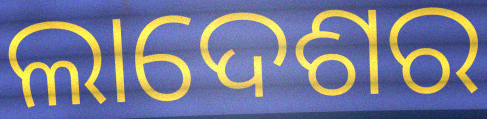
ଲାଦେଶର